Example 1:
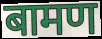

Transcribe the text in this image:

बामण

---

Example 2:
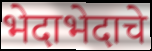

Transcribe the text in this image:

भेदाभेदाचे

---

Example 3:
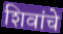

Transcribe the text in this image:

शिवांचे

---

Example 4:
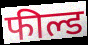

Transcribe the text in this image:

फील्ड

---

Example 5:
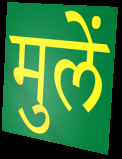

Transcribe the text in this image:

मुलें